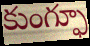
కుంగ్ఫూ